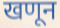
खणून